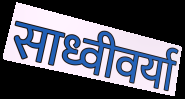
साध्वीवर्या